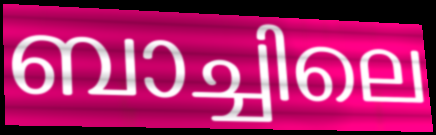
ബാച്ചിലെ